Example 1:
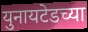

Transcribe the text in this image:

युनायटेडच्या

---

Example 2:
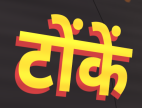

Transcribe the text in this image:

टोंकें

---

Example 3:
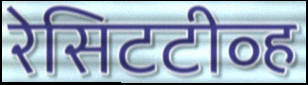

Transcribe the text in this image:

रेसिटटीव्ह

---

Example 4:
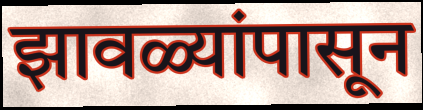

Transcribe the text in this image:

झावळ्यांपासून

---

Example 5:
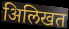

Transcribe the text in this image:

अिलिखत